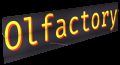
Olfactory